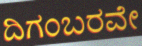
ದಿಗಂಬರವೇ